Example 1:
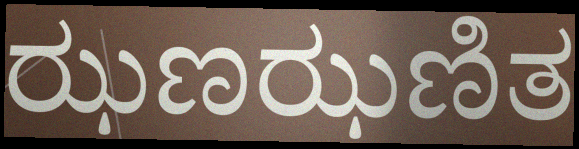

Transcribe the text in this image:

ಝಣಝಣಿತ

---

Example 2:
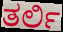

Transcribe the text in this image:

ತರ್ಲಿ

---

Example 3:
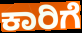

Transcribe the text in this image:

ಕಾರಿಗೆ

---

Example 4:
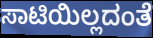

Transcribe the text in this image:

ಸಾಟಿಯಿಲ್ಲದಂತೆ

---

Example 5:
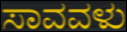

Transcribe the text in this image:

ಸಾವವಳು